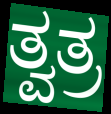
ತ್ವತ್ರ